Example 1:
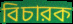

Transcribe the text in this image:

বিচারক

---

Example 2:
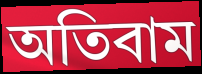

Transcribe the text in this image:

অতিবাম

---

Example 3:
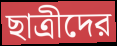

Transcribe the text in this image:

ছাত্রীদের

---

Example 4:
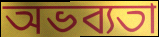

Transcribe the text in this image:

অভব্যতা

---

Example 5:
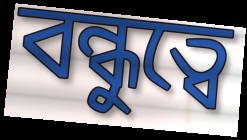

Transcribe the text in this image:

বন্ধুত্বে